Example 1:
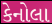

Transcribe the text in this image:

કેનોલા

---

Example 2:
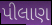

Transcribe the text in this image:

પીલાણ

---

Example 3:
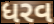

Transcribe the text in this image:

ધરવ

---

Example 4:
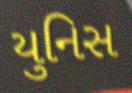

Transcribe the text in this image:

યુનિસ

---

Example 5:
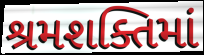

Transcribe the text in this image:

શ્રમશક્તિમાં